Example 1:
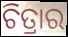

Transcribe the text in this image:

ଚିତ୍ରାର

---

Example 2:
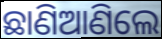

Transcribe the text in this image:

ଛାଣିଆଣିଲେ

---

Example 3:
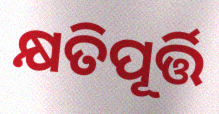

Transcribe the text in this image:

କ୍ଷତିପୂର୍ତ୍ତି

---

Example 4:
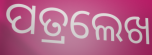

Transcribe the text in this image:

ପତ୍ରଲେଖ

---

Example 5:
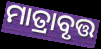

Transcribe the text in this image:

ମାତ୍ରାବୃତ୍ତ